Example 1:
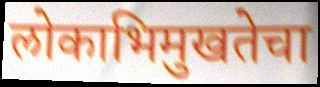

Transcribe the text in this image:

लोकाभिमुखतेचा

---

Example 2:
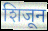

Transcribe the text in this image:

शिजून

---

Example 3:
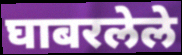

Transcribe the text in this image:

घाबरलेले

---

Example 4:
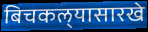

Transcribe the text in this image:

बिचकल्यासारखे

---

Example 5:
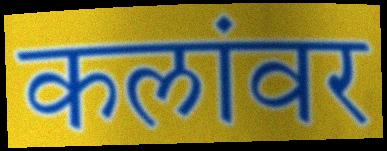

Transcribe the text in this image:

कलांवर